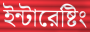
ইন্টারেষ্টিং